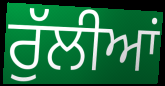
ਰੁੱਲੀਆਂ